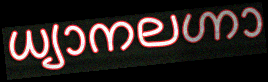
ധ്യാനലഗ്നാ